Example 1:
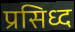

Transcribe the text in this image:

प्रसिध्द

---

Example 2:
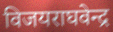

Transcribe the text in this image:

विजयराघवेन्द्र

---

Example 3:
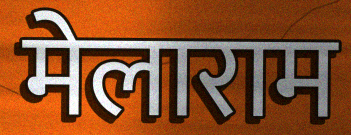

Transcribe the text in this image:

मेलाराम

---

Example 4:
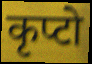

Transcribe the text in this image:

कृप्टो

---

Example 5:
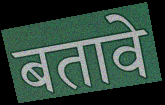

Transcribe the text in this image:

बतावे